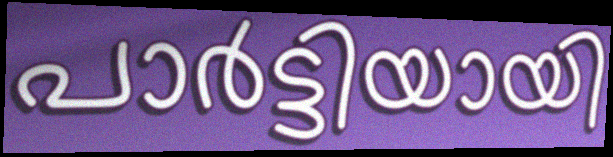
പാർട്ടിയായി